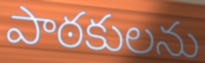
పాఠకులను